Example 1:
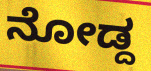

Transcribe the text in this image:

ನೋಡ್ದ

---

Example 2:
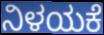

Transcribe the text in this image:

ನಿಳಯಕೆ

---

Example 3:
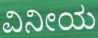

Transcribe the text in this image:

ವಿನೀಯ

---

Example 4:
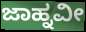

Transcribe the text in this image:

ಜಾಹ್ನವೀ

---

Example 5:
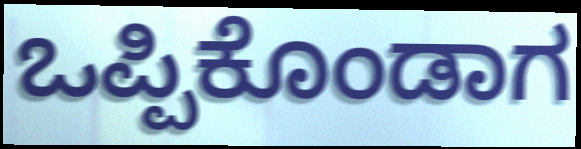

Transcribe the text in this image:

ಒಪ್ಪಿಕೊಂಡಾಗ